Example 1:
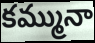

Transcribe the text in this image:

కమ్మునా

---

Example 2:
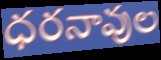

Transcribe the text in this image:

ధరనావుల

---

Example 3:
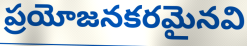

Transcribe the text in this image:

ప్రయోజనకరమైనవి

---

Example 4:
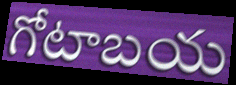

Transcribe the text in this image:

గోటాబయ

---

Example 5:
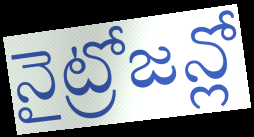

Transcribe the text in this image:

నైట్రోజన్లో